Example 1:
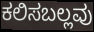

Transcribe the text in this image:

ಕಲಿಸಬಲ್ಲವು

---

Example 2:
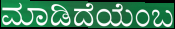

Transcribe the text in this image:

ಮಾಡಿದೆಯೆಂಬ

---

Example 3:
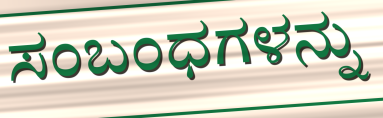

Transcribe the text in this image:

ಸಂಬಂಧಗಳನ್ನು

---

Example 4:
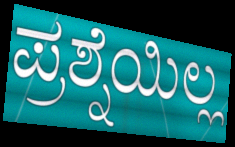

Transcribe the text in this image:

ಪ್ರಶ್ನೆಯಿಲ್ಲ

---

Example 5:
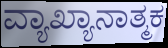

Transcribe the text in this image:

ವ್ಯಾಖ್ಯಾನಾತ್ಮಕ